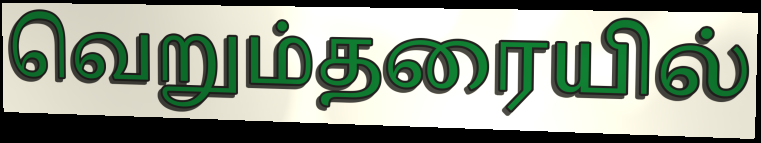
வெறும்தரையில்